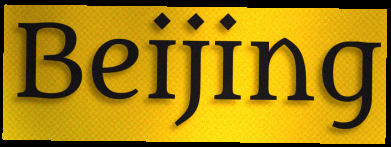
Beijing